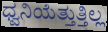
ಧ್ವನಿಯೆತ್ತುತ್ತಿಲ್ಲ